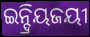
ଇନ୍ଦ୍ରିୟଜୟୀ